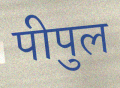
पीपुल